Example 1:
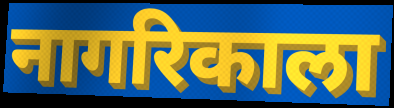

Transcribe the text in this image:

नागरिकाला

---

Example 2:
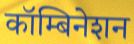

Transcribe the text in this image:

कॉम्बिनेशन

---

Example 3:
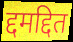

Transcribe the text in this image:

द्दमद्दित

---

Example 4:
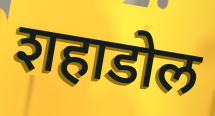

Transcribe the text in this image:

शहाडोल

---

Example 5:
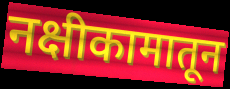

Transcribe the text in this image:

नक्षीकामातून